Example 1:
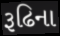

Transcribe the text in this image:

રૂઢિના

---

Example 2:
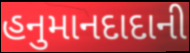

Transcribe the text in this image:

હનુમાનદાદાની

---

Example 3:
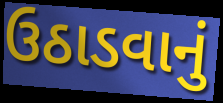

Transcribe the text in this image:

ઉઠાડવાનું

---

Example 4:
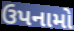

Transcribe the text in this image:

ઉપનામો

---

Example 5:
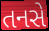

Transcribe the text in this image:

તનસે